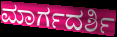
ಮಾರ್ಗದರ್ಶಿ